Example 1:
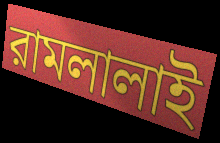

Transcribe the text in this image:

রামলালাই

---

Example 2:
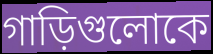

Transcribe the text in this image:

গাড়িগুলোকে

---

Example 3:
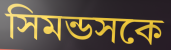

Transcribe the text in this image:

সিমন্ডসকে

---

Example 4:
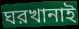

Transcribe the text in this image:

ঘরখানাই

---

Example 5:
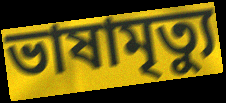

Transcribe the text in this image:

ভাষামৃত্যু